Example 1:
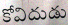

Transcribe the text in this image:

కోవిదుడు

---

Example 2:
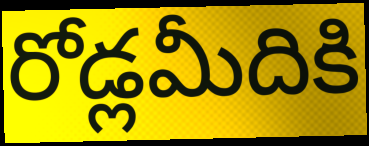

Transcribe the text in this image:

రోడ్లమీదికి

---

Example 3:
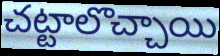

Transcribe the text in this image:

చట్టాలొచ్చాయి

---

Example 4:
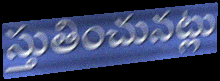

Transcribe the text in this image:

స్తుతించునట్లు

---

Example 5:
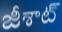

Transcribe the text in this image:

జీశాట్